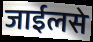
जाईलसे